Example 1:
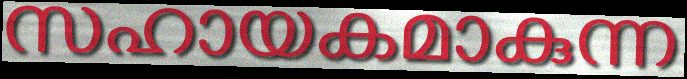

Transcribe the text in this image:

സഹായകമാകുന്ന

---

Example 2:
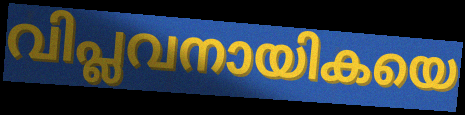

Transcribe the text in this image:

വിപ്ലവനായികയെ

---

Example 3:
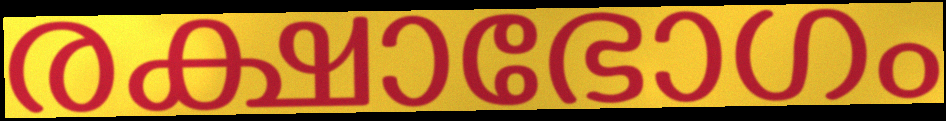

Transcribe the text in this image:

രക്ഷാഭോഗം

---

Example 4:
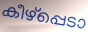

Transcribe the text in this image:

കീഴ്പ്പെടാ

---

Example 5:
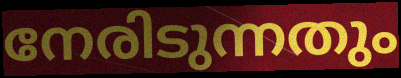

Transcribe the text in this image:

നേരിടുന്നതും